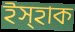
ইস্‌হাক